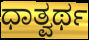
ಧಾತ್ವರ್ಥ